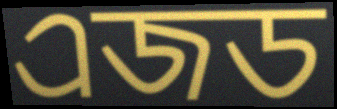
এজড